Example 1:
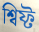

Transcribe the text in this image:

শ্বিফ্ট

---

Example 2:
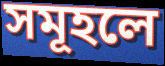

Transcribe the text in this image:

সমূহলে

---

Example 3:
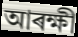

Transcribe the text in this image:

আৰক্ষী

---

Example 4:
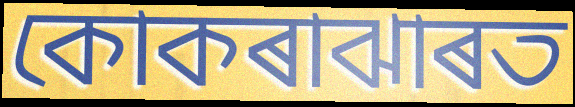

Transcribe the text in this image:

কোকৰাঝাৰত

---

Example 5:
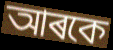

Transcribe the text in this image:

আৰকে